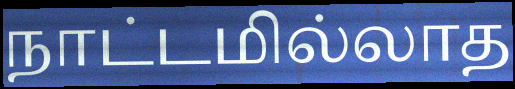
நாட்டமில்லாத